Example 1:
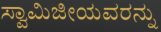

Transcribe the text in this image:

ಸ್ವಾಮಿಜೀಯವರನ್ನು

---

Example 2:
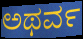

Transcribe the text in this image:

ಅಥರ್ವ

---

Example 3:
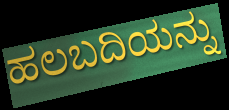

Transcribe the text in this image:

ಹಲಬದಿಯನ್ನು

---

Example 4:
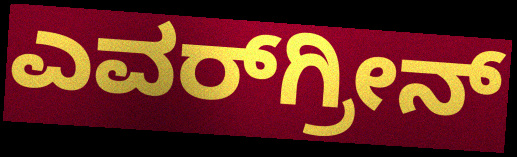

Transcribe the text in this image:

ಎವರ್‌ಗ್ರೀನ್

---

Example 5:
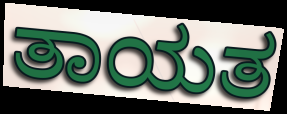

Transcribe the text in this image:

ತಾಯತ